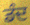
ਡੰਦ